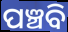
ପଞ୍ଚବି